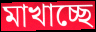
মাখাচ্ছে